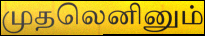
முதலெனினும்